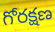
గోరక్షణ